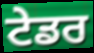
ਟੇਡਰ